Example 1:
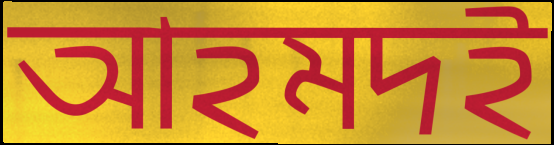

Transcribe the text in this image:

আহমদই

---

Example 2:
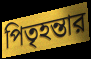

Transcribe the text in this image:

পিতৃহন্তার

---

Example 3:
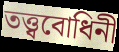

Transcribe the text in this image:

তত্ত্ববোধিনী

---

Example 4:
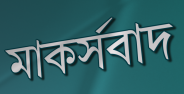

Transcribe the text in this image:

মাকর্সবাদ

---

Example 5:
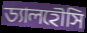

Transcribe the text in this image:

ড্যালহৌসি